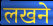
लखने